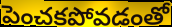
పెంచకపోవడంతో